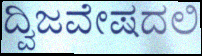
ದ್ವಿಜವೇಷದಲಿ